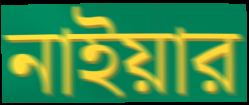
নাইয়ার